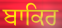
ਬਾਕਿਰ